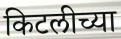
किटलीच्या